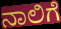
ನಾಲಿಗೆ